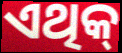
ଏଥିକ୍